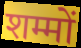
शम्मों